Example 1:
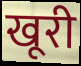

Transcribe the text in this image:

खूरी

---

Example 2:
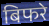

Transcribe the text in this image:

बिफरे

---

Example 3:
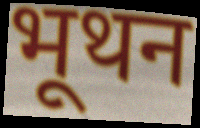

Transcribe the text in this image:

भूथन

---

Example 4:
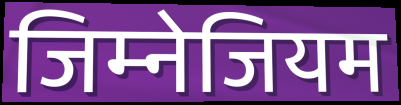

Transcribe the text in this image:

जिम्नेजियम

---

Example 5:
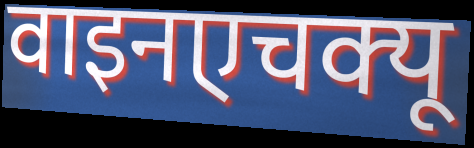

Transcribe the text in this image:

वाइनएचक्यू